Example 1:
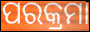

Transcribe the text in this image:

ପରକ୍ରମା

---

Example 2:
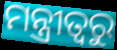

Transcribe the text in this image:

ମନ୍ତ୍ରୀତ୍ୱରୁ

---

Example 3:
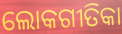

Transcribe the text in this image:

ଲୋକଗୀତିକା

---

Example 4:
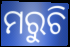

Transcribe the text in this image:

ମରୁଚି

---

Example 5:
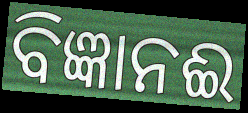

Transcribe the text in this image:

ବିଜ୍ଞାନଈ